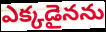
ఎక్కడైనను